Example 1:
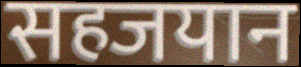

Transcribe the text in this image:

सहजयान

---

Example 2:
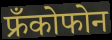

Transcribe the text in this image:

फ्रँकोफोन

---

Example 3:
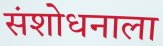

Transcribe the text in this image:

संशोधनाला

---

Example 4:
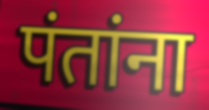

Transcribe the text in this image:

पंतांना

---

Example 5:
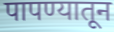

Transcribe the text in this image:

पापण्यातून